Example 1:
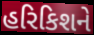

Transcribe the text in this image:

હરિકિશને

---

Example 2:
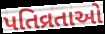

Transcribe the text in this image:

પતિવ્રતાઓ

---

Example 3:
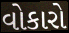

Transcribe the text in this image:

વોકારો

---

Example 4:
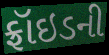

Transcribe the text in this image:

ફ્રૉઇડની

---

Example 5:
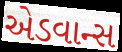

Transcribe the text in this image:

એડવાન્સ